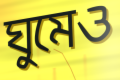
ঘুমেও